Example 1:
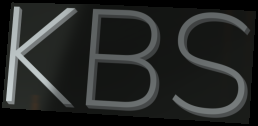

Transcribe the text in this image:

KBS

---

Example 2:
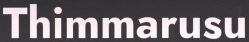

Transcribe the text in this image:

Thimmarusu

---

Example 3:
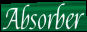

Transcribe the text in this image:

Absorber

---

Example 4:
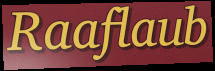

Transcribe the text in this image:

Raaflaub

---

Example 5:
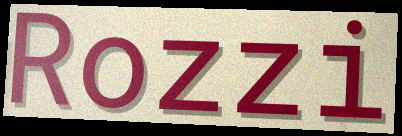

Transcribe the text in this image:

Rozzi